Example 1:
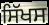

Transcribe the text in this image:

ਸਿੱਖਸ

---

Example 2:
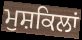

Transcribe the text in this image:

ਮੁਸ਼ਕਿਲਾਂ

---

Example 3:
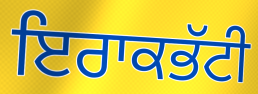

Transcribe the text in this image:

ਇਰਾਕਭੱਟੀ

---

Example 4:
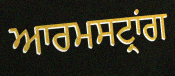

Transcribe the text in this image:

ਆਰਮਸਟ੍ਰਾਂਗ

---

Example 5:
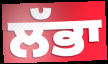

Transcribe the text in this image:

ਲੱਭਾ